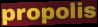
propolis